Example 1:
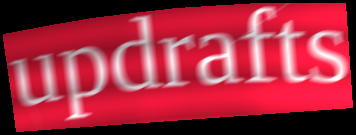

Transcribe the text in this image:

updrafts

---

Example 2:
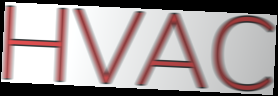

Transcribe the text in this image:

HVAC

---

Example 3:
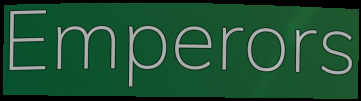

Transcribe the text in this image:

Emperors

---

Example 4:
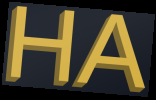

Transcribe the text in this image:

HA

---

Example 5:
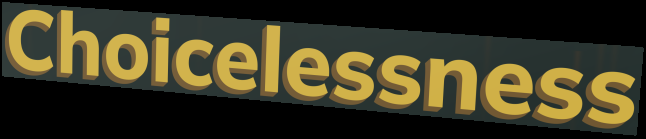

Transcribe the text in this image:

Choicelessness